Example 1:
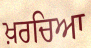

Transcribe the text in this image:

ਖ਼ਰਚਿਆ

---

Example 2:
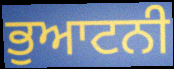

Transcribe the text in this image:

ਭੁਆਟਨੀ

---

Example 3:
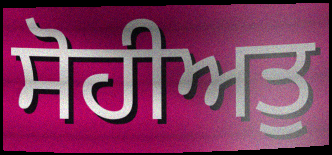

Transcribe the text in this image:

ਸੋਹੀਅਤੁ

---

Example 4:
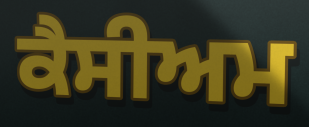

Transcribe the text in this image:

ਕੈਸੀਅਮ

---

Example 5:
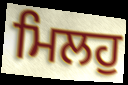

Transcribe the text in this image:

ਮਿਲਹੁ